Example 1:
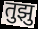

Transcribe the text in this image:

तुझु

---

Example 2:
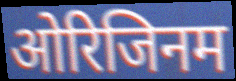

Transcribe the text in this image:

ओरिजिनम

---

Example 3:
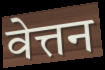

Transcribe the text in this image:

वेत्तन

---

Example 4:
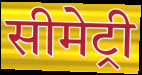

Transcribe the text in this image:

सीमेट्री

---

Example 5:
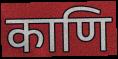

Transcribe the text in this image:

काणि